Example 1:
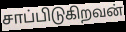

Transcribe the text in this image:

சாப்பிடுகிறவன்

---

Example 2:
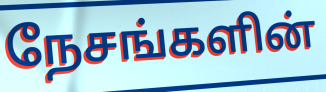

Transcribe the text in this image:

நேசங்களின்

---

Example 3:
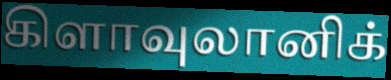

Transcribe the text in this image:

கிளாவுலானிக்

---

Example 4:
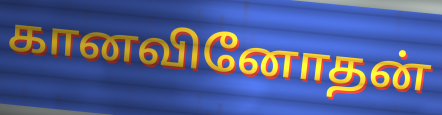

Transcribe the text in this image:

கானவினோதன்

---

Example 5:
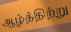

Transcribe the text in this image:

ஆழ்த்திற்று